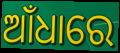
ଆଁଧାରେ